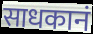
साधकानं